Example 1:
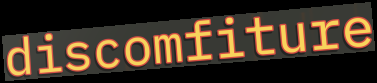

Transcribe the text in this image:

discomfiture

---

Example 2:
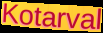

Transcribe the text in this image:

Kotarval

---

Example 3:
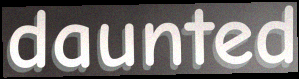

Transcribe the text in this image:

daunted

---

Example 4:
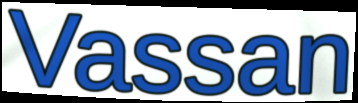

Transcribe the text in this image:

Vassan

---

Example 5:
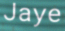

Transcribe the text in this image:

Jaye